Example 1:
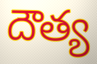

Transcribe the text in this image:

దౌత్య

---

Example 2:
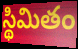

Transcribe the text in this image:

స్థిమితం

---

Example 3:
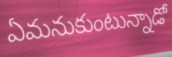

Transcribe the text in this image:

ఏమనుకుంటున్నాడో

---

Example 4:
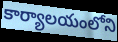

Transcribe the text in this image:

కార్యాలయంలోని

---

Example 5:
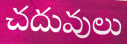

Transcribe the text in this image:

చదువులు